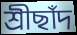
শ্রীছাঁদ